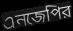
এনজেপির